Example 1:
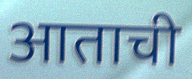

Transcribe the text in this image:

आताची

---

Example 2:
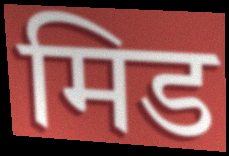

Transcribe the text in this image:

मिड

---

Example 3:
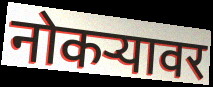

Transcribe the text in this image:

नोकऱ्यावर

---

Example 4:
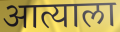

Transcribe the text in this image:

आत्याला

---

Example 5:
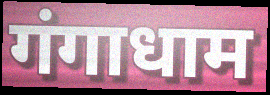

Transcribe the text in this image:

गंगाधाम